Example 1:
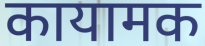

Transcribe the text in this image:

कायामक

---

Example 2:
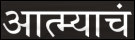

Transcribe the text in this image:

आत्म्याचं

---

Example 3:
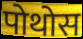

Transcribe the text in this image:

पोथोस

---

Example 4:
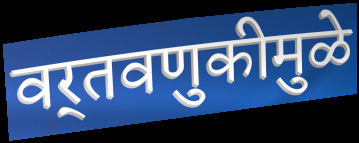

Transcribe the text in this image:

वर्तवणुकीमुळे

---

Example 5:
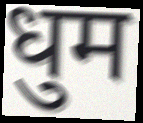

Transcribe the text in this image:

धुम